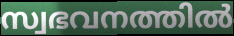
സ്വഭവനത്തിൽ